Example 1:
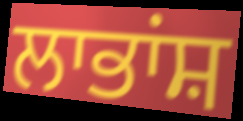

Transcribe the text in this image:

ਲਾਭਾਂਸ਼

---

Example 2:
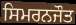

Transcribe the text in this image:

ਸਿਮਰਨਜੌਤ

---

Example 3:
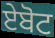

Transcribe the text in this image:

ਏਬੋਟ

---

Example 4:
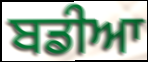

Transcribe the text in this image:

ਬਡੀਆ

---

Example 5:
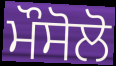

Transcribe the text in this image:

ਮੌਸੋਲੋ